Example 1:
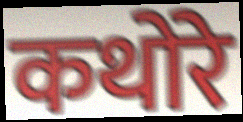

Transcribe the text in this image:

कथोरे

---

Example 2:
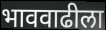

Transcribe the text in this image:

भाववाढीला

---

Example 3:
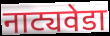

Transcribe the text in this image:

नाट्यवेडा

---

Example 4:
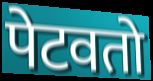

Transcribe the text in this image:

पेटवतो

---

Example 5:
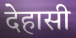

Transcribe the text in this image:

देहासी